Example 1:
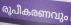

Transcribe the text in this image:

രൂപീകരണവും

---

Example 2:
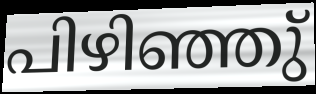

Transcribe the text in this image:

പിഴിഞ്ഞു്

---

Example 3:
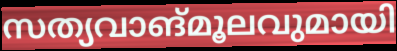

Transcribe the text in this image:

സത്യവാങ്മൂലവുമായി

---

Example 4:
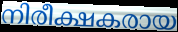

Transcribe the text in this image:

നിരീക്ഷകരായ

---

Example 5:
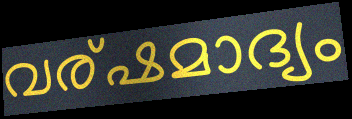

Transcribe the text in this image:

വര്ഷമാദ്യം